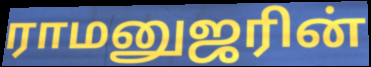
ராமனுஜரின்